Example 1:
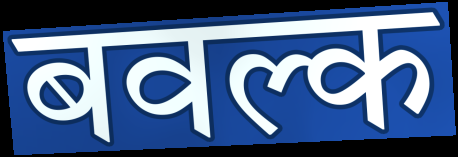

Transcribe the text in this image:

बवल्क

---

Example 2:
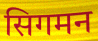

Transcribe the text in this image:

सिगमन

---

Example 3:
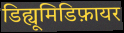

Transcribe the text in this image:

डिह्यूमिडिफ़ायर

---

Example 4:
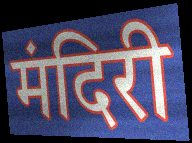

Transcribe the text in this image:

मंदिरी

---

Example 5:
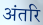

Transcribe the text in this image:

अंतरि